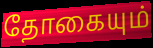
தோகையும்